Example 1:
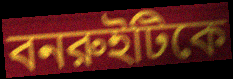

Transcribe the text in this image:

বনরুইটিকে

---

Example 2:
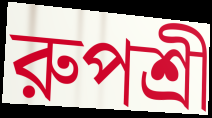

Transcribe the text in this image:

রুপশ্রী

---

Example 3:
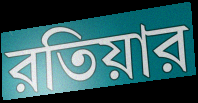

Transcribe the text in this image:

রতিয়ার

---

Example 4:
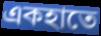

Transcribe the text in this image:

একহাতে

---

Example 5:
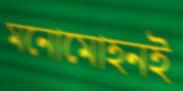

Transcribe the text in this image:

মনোমোহনই